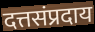
दत्तसंप्रदाय